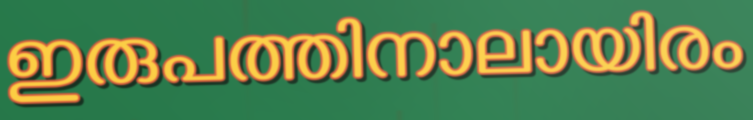
ഇരുപത്തിനാലായിരം